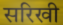
सरिखी